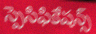
స్పెసిఫికేషన్స్